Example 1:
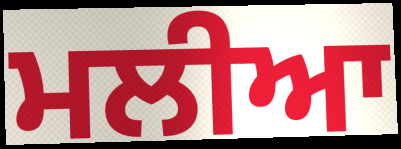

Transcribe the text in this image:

ਮਲੀਆ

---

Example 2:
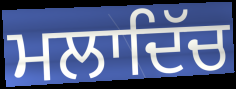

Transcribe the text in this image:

ਮਲਾਦਿੱਚ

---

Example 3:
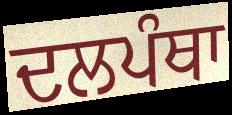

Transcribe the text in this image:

ਦਲਪੰਥਾ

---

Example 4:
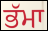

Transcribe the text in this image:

ਭੱਮਾ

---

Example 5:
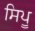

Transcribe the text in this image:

ਸਿਪੂ